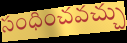
సంధించవచ్చు